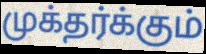
முக்தர்க்கும்